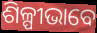
ଶିଳ୍ପୀଭାବେ